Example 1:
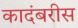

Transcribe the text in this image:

कादंबरीस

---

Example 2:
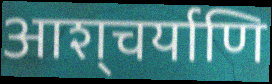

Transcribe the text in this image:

आश्चर्याणि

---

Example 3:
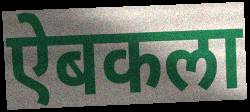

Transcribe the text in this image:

ऐबकला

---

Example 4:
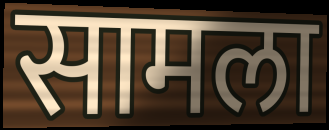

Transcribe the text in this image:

सामला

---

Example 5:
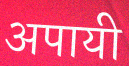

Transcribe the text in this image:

अपायी